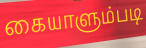
கையாளும்படி